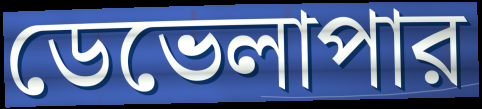
ডেভেলাপার